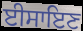
ਈਸਾਇਣ